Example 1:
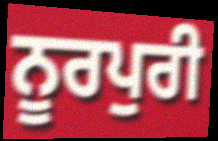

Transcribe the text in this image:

ਨੂਰਪੁਰੀ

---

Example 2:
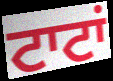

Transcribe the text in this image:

ਟਾਟਾਂ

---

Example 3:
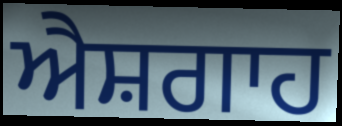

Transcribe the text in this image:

ਐਸ਼ਗਾਹ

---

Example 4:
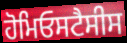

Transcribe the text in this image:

ਹੋਮਿਓਸਟੈਸੀਸ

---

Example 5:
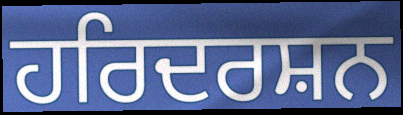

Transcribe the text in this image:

ਹਰਿਦਰਸ਼ਨ